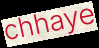
chhaye